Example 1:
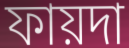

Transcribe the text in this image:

ফায়দা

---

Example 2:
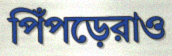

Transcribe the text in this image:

পিঁপড়েরাও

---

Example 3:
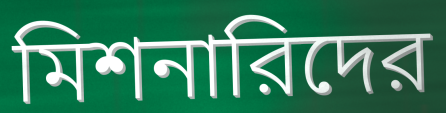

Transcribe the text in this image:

মিশনারিদের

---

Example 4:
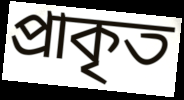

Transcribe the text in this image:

প্রাকৃত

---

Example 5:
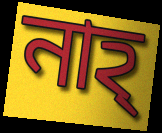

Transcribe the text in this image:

নাহ্